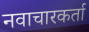
नवाचारकर्ता